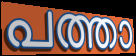
പത്താ